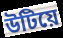
উটিয়ে